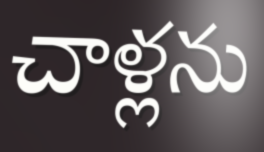
చాళ్లను